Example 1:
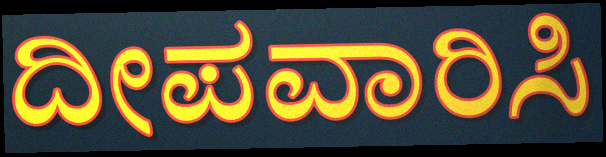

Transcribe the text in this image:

ದೀಪವಾರಿಸಿ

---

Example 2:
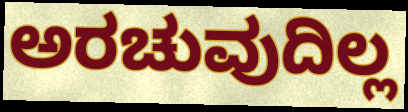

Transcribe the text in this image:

ಅರಚುವುದಿಲ್ಲ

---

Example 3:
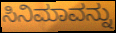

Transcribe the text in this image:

ಸಿನಿಮಾವನ್ನು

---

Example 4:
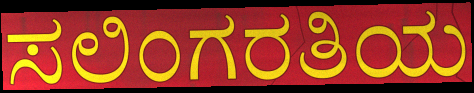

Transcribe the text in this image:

ಸಲಿಂಗರತಿಯ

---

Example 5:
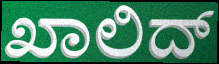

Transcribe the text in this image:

ಖಾಲಿದ್